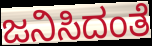
ಜನಿಸಿದಂತೆ